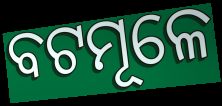
ବଟମୂଳେ